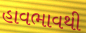
હાવભાવથી